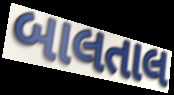
બાલતાલ